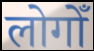
लोगोँ